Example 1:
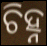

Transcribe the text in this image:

ଚିହ୍ନ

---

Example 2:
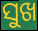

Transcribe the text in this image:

ସୁଖ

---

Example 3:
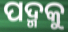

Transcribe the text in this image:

ପଦ୍ମକୁ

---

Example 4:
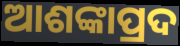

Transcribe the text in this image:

ଆଶଙ୍କାପ୍ରଦ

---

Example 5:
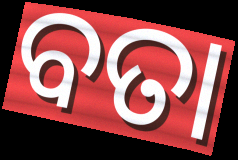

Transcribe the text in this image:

ବତା